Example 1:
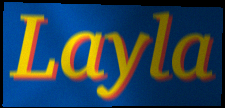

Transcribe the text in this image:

Layla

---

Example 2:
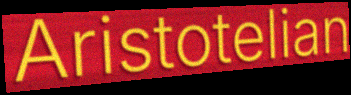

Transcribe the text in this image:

Aristotelian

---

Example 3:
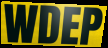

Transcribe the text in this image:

WDEP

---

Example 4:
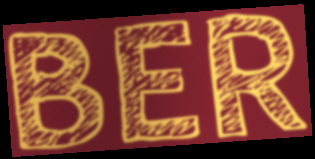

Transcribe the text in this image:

BER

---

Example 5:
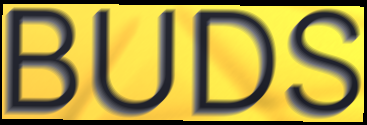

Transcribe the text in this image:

BUDS